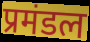
प्रमंडल